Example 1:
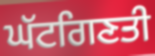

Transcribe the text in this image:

ਘੱਟਗਿਣਤੀ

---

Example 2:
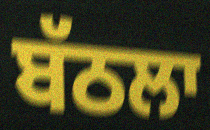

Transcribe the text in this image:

ਬੱਠਲਾ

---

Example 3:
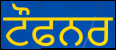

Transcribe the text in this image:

ਟੌਫਨਰ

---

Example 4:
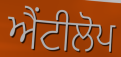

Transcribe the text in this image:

ਐਂਟੀਲੋਪ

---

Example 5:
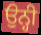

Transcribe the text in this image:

ਉਨ੍ਹੀ